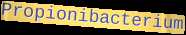
Propionibacterium